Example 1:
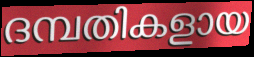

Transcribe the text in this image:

ദമ്പതികളായ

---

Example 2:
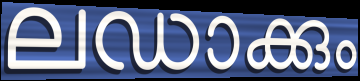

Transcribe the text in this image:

ലഡാക്കും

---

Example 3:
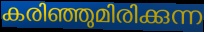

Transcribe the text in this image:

കരിഞ്ഞുമിരിക്കുന്ന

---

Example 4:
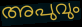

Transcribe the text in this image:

അപുവും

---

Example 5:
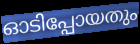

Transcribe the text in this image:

ഓടിപ്പോയതും